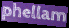
phellam